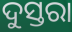
ଦୁସ୍ତରା